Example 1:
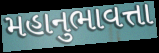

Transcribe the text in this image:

મહાનુભાવત્તા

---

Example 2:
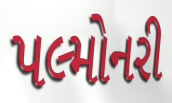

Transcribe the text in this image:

પલ્મોનરી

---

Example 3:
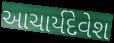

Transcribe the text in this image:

આચાર્યદેવેશ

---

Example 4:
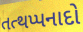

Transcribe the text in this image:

તત્થપ્પનાદો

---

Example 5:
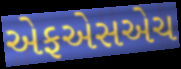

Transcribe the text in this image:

એફએસએચ